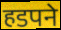
हडपने